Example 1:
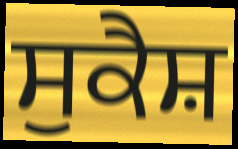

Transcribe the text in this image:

ਸੁਕੈਸ਼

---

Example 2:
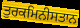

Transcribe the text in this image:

ਤੁਰਕਮਿਨੀਸਤਾਨ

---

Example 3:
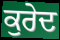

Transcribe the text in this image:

ਕੁਰੇਦ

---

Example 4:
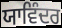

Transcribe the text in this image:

ਯਾਵਿੰਦਰ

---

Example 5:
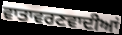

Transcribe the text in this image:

ਵਾਤਾਵਰਣਵਾਦੀਆਂ